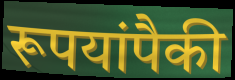
रूपयांपैकी